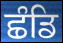
ਛੰਡਿ